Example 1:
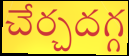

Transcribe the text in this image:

చేర్చదగ్గ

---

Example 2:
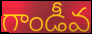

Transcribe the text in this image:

గాండీవ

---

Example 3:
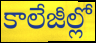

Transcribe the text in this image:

కాలేజీల్లో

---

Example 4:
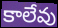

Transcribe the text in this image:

కాలేవు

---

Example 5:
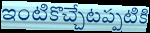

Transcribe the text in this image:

ఇంటికొచ్చేటప్పటికి